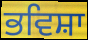
ਭਵਿਸ਼ਾ